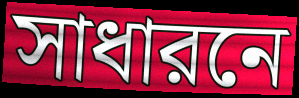
সাধারনে